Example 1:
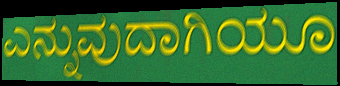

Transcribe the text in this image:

ಎನ್ನುವುದಾಗಿಯೂ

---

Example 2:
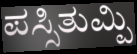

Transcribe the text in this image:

ಪಸ್ಸಿತುಮ್ಪಿ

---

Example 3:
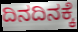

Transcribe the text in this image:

ದಿನದಿನಕ್ಕೆ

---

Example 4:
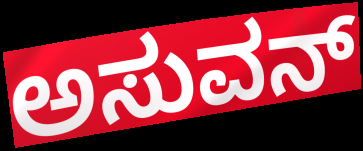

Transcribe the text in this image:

ಅಸುವನ್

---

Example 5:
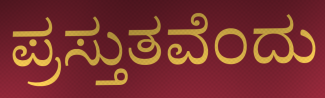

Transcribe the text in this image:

ಪ್ರಸ್ತುತವೆಂದು